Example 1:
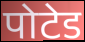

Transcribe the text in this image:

पोटेड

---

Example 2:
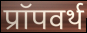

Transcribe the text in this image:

प्रॉपवर्थ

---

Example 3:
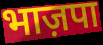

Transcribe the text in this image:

भाज़पा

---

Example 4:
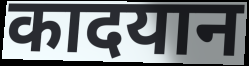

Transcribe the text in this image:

कादयान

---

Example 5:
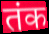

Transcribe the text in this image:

तंक